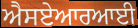
ਐਸਏਆਰਆਈ